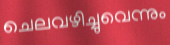
ചെലവഴിച്ചുവെന്നും